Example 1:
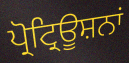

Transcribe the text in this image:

ਪ੍ਰੋਟ੍ਰਿਊਸ਼ਨਾਂ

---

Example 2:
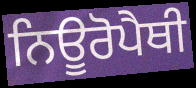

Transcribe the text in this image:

ਨਿਊਰੋਪੈਥੀ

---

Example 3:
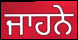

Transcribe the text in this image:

ਜਾਹਨੇ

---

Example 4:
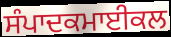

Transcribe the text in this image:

ਸੰਪਾਦਕਮਾਈਕਲ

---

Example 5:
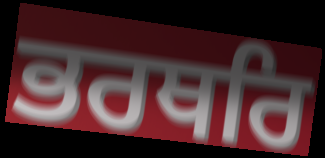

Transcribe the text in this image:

ਭਰਥਰਿ